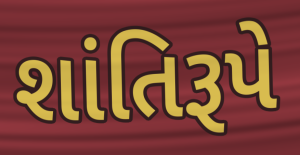
શાંતિરૂપે